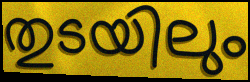
തുടയിലും